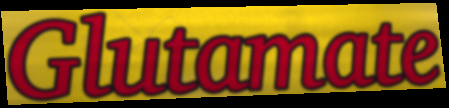
Glutamate